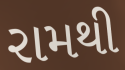
રામથી